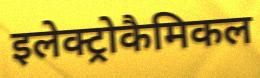
इलेक्ट्रोकैमिकल